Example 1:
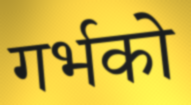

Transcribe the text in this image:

गर्भको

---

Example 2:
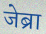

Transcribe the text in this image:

जेब्रा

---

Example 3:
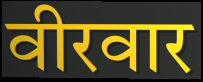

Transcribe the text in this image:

वीरवार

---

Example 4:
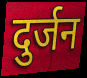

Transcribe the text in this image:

दुर्जन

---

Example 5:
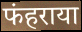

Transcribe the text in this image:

फंहराया